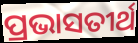
ପ୍ରଭାସତୀର୍ଥ